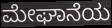
ಮೇಘಾನೆಯ